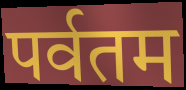
पर्वतम